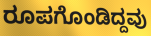
ರೂಪಗೊಂಡಿದ್ದವು